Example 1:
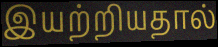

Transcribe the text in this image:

இயற்றியதால்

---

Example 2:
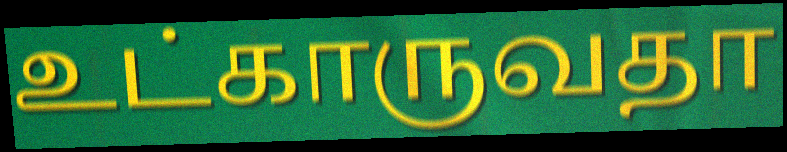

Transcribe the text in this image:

உட்காருவதா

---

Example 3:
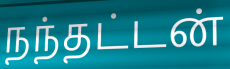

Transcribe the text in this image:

நந்தட்டன்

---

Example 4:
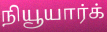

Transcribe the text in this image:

நியூயார்க்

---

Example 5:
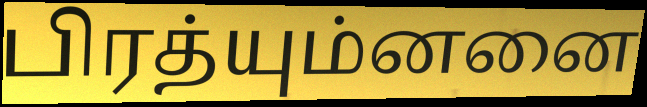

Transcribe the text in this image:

பிரத்யும்னனை